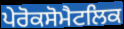
ਪੇਰੋਕਸੋਮੈਟਲਿਕ